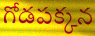
గోడపక్కన